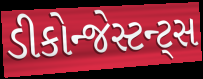
ડીકોન્જેસ્ટન્ટ્સ